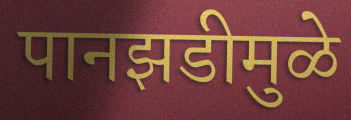
पानझडीमुळे